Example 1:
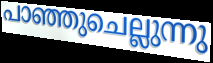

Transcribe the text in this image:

പാഞ്ഞുചെല്ലുന്നു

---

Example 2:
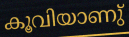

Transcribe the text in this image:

കൂവിയാണു്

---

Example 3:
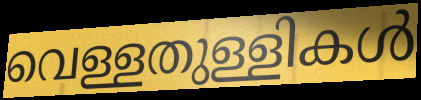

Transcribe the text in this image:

വെള്ളതുള്ളികൾ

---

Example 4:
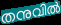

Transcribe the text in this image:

തനുവിൽ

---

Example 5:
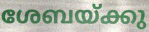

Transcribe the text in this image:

ശേബയ്ക്കു